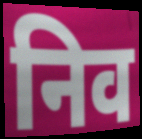
निव